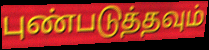
புண்படுத்தவும்